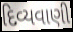
દિવ્યવાણી